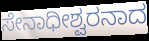
ಸೇನಾಧೀಶ್ವರನಾದ